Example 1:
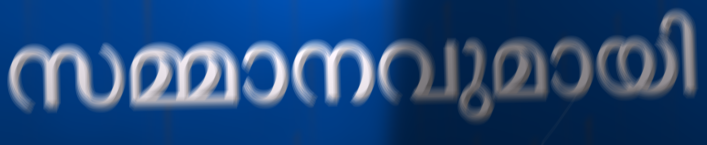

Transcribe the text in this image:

സമ്മാനവുമായി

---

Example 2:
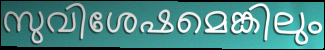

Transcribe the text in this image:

സുവിശേഷമെങ്കിലും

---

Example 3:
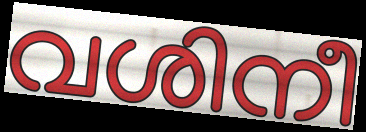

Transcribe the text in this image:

വശിനീ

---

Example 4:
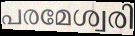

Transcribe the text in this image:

പരമേശ്വരി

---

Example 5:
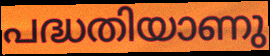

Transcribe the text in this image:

പദ്ധതിയാണു